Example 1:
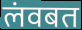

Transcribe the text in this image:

लंवबत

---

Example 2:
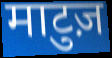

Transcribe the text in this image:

माटुज़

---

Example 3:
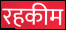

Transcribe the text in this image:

रहकीम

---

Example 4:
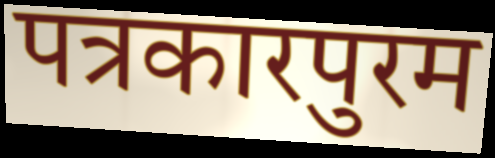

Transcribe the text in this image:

पत्रकारपुरम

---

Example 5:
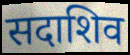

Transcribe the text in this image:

सदाशिव